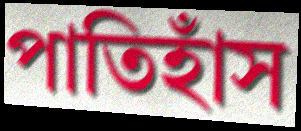
পাতিহাঁস